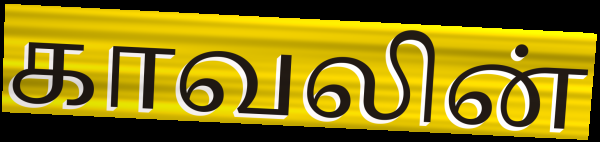
காவலின்